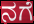
ನಗೆ